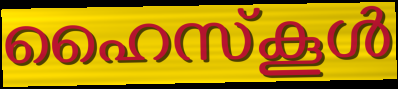
ഹൈസ്‌കൂൾ